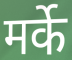
मर्के